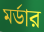
মর্ডার